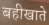
बहीखाते